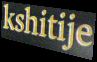
kshitije